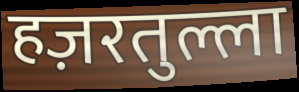
हज़रतुल्ला